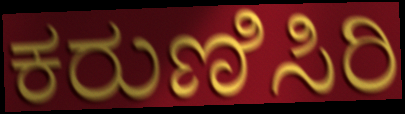
ಕರುಣಿಸಿರಿ